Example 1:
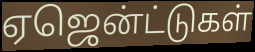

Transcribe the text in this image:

ஏஜென்ட்டுகள்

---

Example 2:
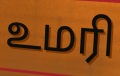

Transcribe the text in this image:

உமரி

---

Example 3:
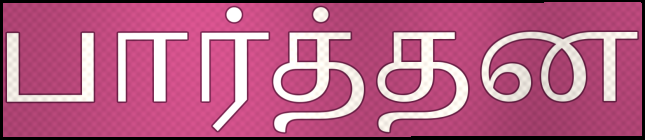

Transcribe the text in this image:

பார்த்தன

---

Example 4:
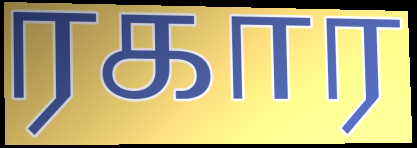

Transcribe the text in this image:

ரகார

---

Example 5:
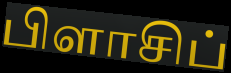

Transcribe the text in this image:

பிளாசிப்